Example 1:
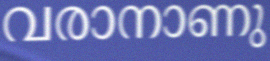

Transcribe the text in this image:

വരാനാണു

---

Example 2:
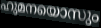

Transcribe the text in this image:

ഹുമനയൊസും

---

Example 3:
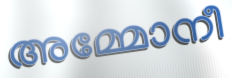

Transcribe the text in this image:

അമ്മോനീ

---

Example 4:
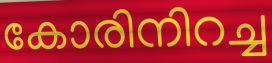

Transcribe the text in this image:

കോരിനിറച്ച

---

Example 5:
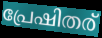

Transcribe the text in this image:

പ്രേഷിതര്